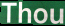
Thou